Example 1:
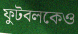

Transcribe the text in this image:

ফুটবলকেও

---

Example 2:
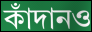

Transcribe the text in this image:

কাঁদানও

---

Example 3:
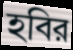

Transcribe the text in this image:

হবির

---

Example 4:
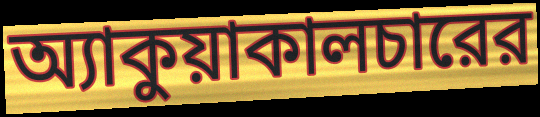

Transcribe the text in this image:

অ্যাকুয়াকালচারের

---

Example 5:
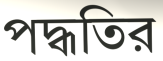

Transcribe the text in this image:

পদ্ধতির